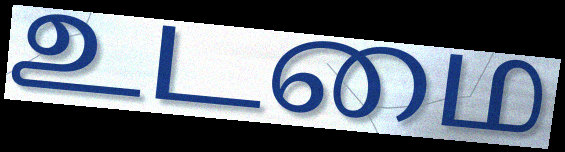
உடமை